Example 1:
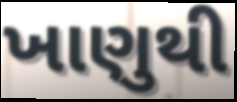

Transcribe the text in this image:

ખાણુથી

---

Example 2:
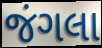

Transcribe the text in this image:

જંગલા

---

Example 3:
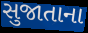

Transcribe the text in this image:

સુજાતાના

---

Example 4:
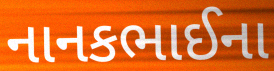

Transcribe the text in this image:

નાનકભાઈના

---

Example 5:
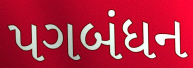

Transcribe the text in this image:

પગબંધન